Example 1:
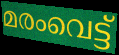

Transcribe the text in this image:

മരംവെട്ട്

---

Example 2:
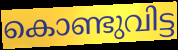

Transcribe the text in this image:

കൊണ്ടുവിട്ട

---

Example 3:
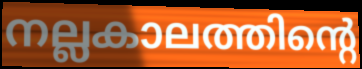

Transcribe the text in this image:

നല്ലകാലത്തിന്റെ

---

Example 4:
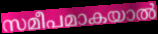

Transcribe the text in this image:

സമീപമാകയാൽ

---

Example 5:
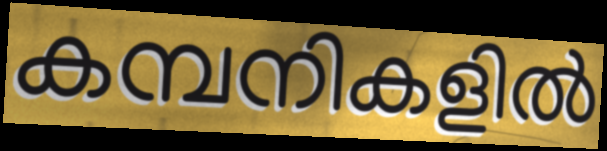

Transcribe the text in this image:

കമ്പനികളിൽ